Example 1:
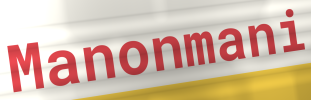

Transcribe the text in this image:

Manonmani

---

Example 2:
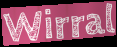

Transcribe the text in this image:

Wirral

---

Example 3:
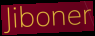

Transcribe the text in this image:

Jiboner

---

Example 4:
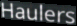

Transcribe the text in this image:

Haulers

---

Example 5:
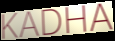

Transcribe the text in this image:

KADHA